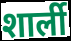
शार्ली